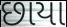
છાયા